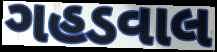
ગહડવાલ